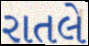
રાતલે